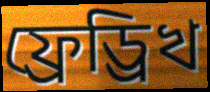
ফ্ৰেড্ৰিখ